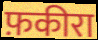
फ़कीरा